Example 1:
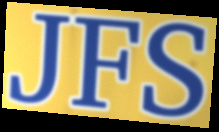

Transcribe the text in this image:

JFS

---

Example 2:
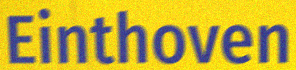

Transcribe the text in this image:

Einthoven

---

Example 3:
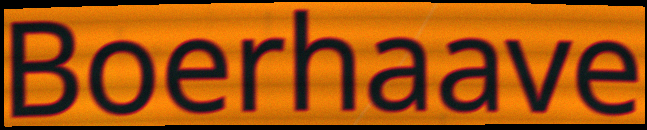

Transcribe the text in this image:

Boerhaave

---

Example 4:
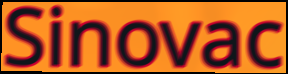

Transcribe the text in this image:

Sinovac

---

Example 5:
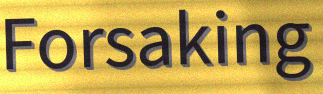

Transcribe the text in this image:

Forsaking